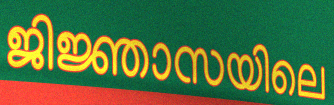
ജിജ്ഞാസയിലെ